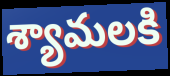
శ్యామలకి